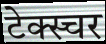
टेक्स्चर